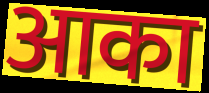
आका